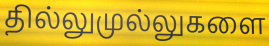
தில்லுமுல்லுகளை